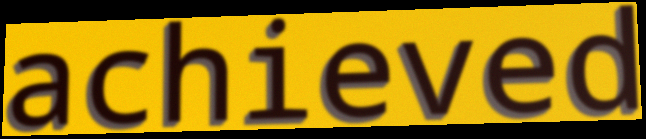
achieved